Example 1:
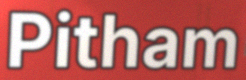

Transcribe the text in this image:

Pitham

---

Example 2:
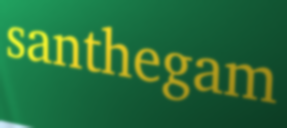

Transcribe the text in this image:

santhegam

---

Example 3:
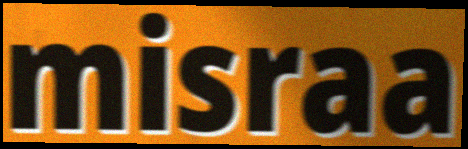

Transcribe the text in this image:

misraa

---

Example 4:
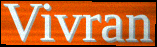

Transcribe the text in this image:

Vivran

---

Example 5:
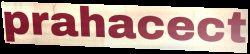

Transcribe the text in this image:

prahacect